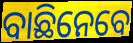
ବାଛିନେବେ